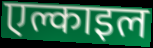
एल्काइल